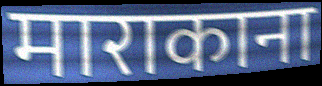
माराकाना